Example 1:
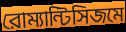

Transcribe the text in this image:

রোম্যান্টিসিজমে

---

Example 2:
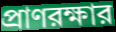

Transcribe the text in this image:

প্রাণরক্ষার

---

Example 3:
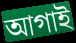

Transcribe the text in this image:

আগাই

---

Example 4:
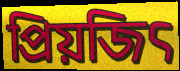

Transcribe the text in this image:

প্রিয়জিৎ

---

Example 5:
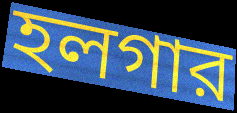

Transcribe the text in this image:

হলগার